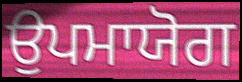
ਉਪਮਾਯੋਗ